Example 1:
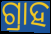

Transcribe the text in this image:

ଗ୍ରାହ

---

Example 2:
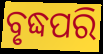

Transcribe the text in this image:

ବୃଦ୍ଧପରି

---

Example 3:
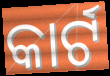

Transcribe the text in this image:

କାର୍ଟ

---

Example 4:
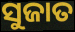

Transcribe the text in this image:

ସୁଜାତ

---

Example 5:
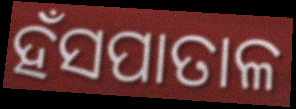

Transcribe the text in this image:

ହଁସପାତାଳ